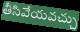
తీసివేయవచ్చు